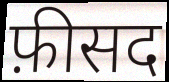
फ़ीसद